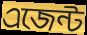
এজেন্ট